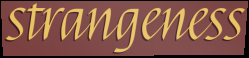
strangeness